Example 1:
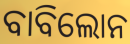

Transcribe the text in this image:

ବାବିଲୋନ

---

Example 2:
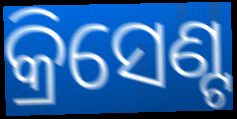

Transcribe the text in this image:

କ୍ରିସେଣ୍ଟ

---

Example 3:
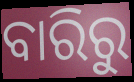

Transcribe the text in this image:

ବାରିରୁ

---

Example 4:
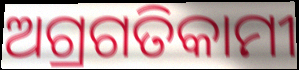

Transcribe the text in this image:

ଅଗ୍ରଗତିକାମୀ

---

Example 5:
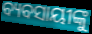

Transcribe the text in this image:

ବ୍ୟବସାୟୀଙ୍କୁ